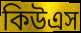
কিউএস